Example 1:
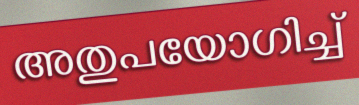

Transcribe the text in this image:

അതുപയോഗിച്ച്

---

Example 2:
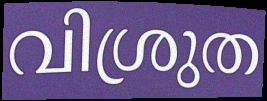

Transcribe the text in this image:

വിശ്രുത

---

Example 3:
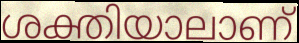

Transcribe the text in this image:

ശക്തിയാലാണ്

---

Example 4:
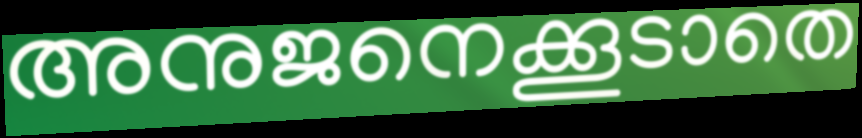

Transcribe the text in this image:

അനുജനെക്കൂടാതെ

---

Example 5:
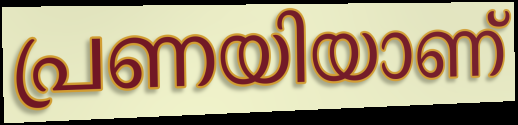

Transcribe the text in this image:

പ്രണയിയാണ്